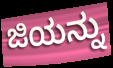
ಜಿಯನ್ನು